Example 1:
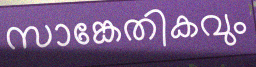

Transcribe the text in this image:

സാങ്കേതികവും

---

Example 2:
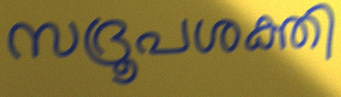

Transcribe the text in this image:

സദ്രൂപശക്തി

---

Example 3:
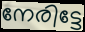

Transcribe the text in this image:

നേരിട്ടേ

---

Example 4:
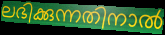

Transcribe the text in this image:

ലഭിക്കുന്നതിനാൽ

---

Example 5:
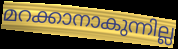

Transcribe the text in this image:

മറക്കാനാകുന്നില്ല